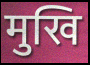
मुखि